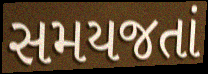
સમયજતાં